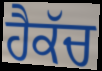
ਹੈਕੱਚ